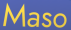
Maso